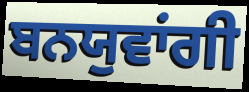
ਬਨਯੁਵਾਂਗੀ